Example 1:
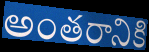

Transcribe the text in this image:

అంతరానికి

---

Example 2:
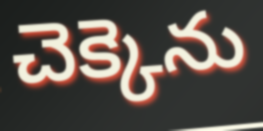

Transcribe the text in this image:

చెక్కెను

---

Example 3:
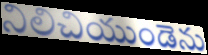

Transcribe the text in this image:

నిలిచియుండెను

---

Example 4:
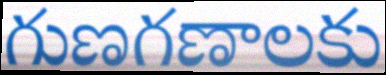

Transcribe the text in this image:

గుణగణాలకు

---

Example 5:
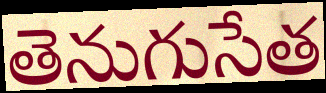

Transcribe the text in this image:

తెనుగుసేత